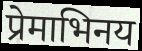
प्रेमाभिनय